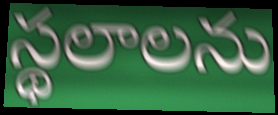
స్థలాలను